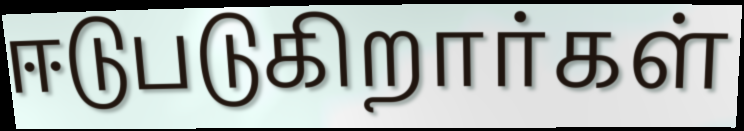
ஈடுபடுகிறார்கள்